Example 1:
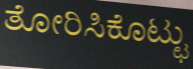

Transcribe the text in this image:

ತೋರಿಸಿಕೊಟ್ಟು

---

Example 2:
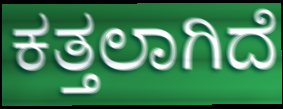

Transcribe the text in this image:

ಕತ್ತಲಾಗಿದೆ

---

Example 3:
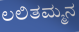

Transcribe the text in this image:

ಲಲಿತಮ್ಮನ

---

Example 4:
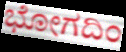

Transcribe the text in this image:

ಭೋಗದಿಂ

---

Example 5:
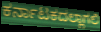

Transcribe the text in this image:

ಕರ್ನಾಟಕದಲ್ಲಾಗಲಿ